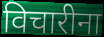
विचारीना